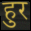
हुर